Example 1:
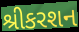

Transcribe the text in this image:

શ્રીકરશન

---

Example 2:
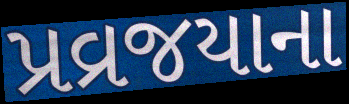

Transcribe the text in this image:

પ્રવ્રજયાના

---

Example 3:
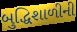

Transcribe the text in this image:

બુદ્ધિશાળીની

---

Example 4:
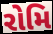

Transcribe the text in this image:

રોમિ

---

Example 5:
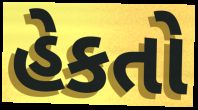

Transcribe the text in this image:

હેકતો